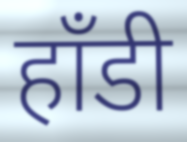
हाँडी